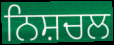
ਨਿਸ਼ਚਲ